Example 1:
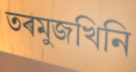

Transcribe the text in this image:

তৰমুজখিনি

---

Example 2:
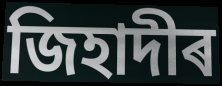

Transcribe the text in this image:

জিহাদীৰ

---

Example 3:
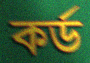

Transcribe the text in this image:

কৰ্ড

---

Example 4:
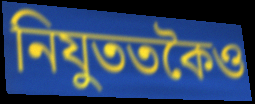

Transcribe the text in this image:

নিযুততকৈও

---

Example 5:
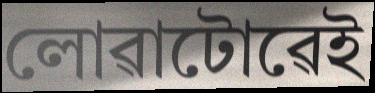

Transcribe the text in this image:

লোৱাটোৱেই